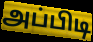
அப்பிடி